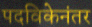
पदविकेनंतर